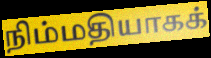
நிம்மதியாகக்